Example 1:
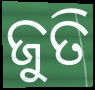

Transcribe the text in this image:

ଜୁତି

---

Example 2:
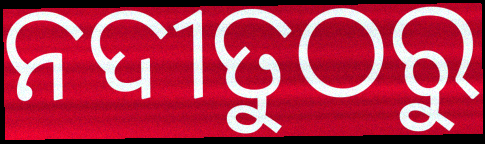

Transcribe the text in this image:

ନଦୀତୁଠରୁ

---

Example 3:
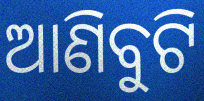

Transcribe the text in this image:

ଆଣିବୁଟି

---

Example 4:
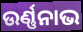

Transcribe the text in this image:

ଉର୍ଣ୍ଣନାଭ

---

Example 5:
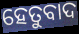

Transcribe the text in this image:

ହେତୁବାଦ